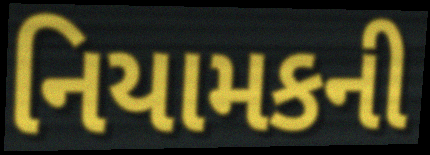
નિયામકની